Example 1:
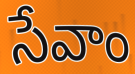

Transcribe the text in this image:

సేవాం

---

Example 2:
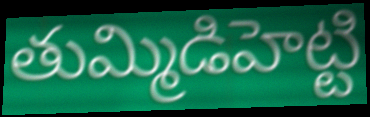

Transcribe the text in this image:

తుమ్మిడిహెట్టి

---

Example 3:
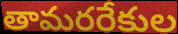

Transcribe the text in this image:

తామరరేకుల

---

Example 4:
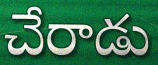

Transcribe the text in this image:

చేరాడు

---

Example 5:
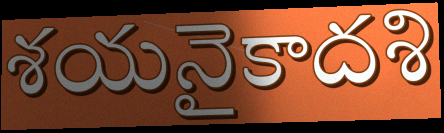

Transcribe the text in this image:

శయనైకాదశి